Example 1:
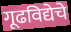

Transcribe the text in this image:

गूढविद्येचे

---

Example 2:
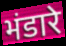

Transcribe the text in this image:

भंडारे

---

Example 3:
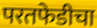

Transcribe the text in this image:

परतफेडीचा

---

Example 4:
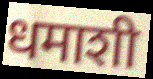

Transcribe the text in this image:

धमाशी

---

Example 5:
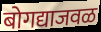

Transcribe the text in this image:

बोगद्याजवळ